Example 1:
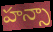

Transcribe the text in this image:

హన్సా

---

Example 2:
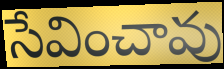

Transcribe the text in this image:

సేవించావు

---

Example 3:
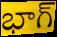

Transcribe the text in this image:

భాగ్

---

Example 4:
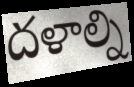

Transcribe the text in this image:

దళాల్ని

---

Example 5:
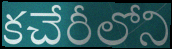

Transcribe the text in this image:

కచేరీలోని